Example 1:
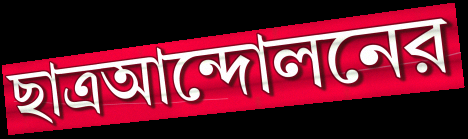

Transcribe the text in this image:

ছাত্রআন্দোলনের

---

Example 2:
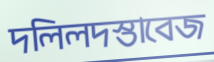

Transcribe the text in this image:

দলিলদস্তাবেজ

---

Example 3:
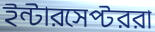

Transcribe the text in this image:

ইন্টারসেপ্টররা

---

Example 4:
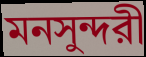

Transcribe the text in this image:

মনসুন্দরী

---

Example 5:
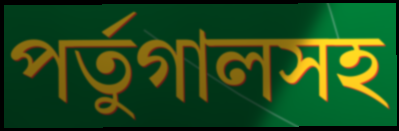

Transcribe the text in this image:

পর্তুগালসহ